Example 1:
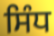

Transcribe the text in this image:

ਸਿੰਧ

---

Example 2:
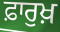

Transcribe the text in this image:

ਫ਼ਾਰੁਖ਼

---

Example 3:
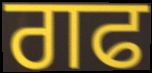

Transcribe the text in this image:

ਗਫ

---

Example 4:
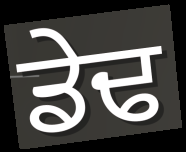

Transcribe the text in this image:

ਡੇਢ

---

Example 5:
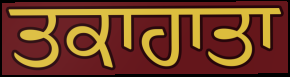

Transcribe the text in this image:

ਤਕਾਹਾਤਾ